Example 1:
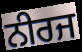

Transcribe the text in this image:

ਨੀਰਜ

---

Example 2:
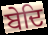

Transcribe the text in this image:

ਬੇਦਿ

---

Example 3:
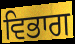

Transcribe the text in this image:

ਵਿਭਾਗ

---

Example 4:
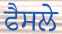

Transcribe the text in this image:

ਫੈਸਲੇ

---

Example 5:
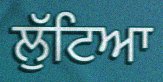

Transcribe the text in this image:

ਲੁੱਟਿਆ